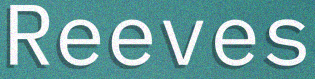
Reeves